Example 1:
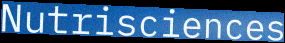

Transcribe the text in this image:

Nutrisciences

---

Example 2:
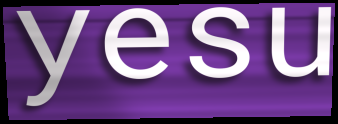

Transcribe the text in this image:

yesu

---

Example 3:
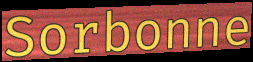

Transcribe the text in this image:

Sorbonne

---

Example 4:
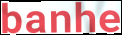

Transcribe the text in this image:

banhe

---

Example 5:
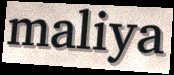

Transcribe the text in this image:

maliya